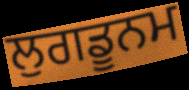
ਲੁਗਡੂਨਮ